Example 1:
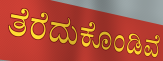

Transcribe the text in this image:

ತೆರೆದುಕೊಂಡಿವೆ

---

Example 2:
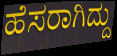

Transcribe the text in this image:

ಹೆಸರಾಗಿದ್ದು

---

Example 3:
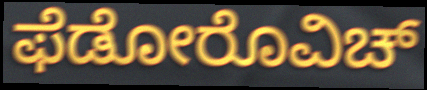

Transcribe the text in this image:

ಫೆಡೋರೊವಿಚ್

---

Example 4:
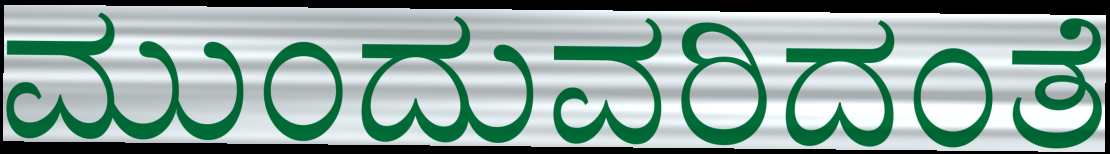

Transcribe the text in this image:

ಮುಂದುವರಿದಂತೆ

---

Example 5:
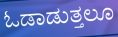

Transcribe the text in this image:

ಓಡಾಡುತ್ತಲೂ